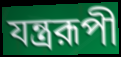
যন্ত্ররূপী